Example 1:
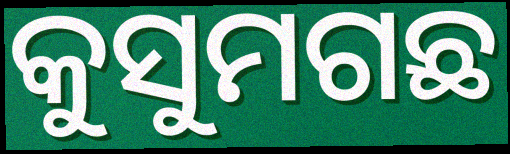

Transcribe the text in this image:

କୁସୁମଗଛ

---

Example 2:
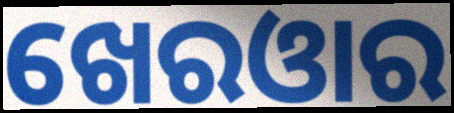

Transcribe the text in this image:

ଖେରଓାର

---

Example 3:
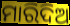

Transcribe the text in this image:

ମାରିଦିଅ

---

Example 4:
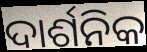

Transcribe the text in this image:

ଦାର୍ଶନିକ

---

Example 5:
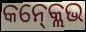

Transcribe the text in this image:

କନ୍କ୍ଲେଭ